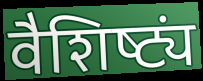
वैशिष्ट्यं